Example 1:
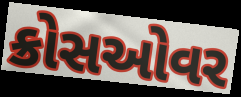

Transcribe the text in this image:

ક્રોસઓવર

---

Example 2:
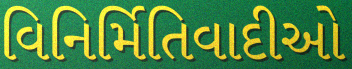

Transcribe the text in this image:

વિનિર્મિતિવાદીઓ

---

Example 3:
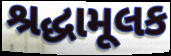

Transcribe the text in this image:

શ્રદ્ધામૂલક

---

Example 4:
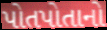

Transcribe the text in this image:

પોતપોતાનો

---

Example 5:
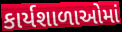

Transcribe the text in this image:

કાર્યશાળાઓમાં